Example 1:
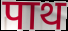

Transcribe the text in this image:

पाथ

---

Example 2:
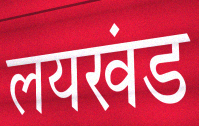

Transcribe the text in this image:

लयखंड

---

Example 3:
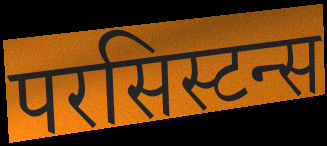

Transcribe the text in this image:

परसिस्टन्स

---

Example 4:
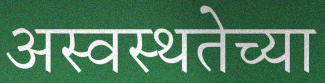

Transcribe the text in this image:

अस्वस्थतेच्या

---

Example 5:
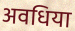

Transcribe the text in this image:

अवधिया